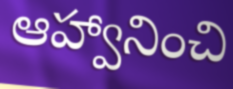
ఆహ్వానించి